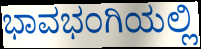
ಭಾವಭಂಗಿಯಲ್ಲಿ